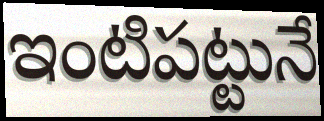
ఇంటిపట్టునే